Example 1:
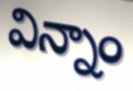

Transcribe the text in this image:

విన్నాం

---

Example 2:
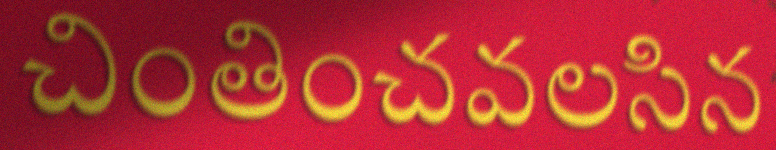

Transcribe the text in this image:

చింతించవలసిన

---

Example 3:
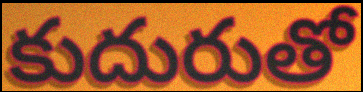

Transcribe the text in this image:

కుదురుతో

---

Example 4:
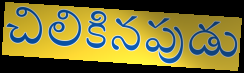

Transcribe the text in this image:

చిలికినపుడు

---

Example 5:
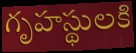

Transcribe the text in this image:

గృహస్థులకి